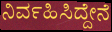
ನಿರ್ವಹಿಸಿದ್ದೇನೆ